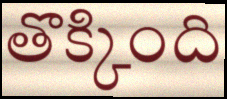
తొక్కింది